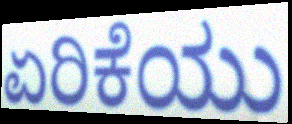
ಏರಿಕೆಯು